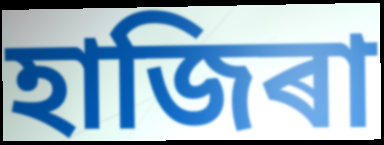
হাজিৰা